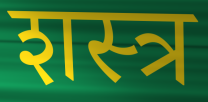
शस्त्र